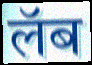
लॅब